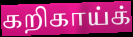
கறிகாய்க்